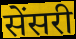
सेंसरी